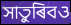
সাতুৰিবও